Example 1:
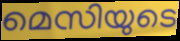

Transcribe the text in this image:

മെസിയുടെ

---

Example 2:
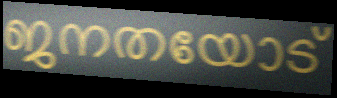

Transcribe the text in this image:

ജനതയോട്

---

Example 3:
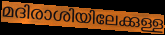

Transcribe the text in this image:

മദിരാശിയിലേക്കുള്ള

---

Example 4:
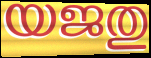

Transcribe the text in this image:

യജതു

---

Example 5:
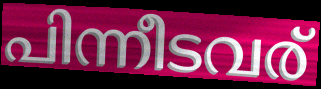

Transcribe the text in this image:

പിന്നീടവര്